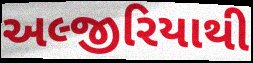
અલ્જીરિયાથી